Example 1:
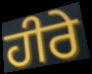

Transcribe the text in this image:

ਹੀਰੇ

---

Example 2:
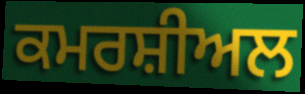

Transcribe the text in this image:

ਕਮਰਸ਼ੀਅਲ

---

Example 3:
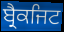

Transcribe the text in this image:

ਬ੍ਰੈਕਜਿਟ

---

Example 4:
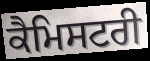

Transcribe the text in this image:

ਕੈਮਿਸਟਰੀ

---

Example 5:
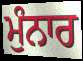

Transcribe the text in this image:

ਮੁੰਨਾਰ